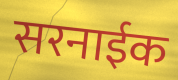
सरनाईक